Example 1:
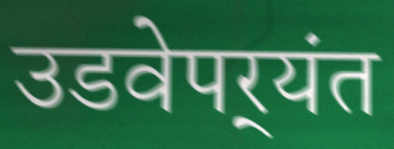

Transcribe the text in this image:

उडवेपर्यंत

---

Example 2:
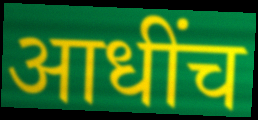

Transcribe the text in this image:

आधींच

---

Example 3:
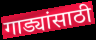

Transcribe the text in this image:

गाड्यांसाठी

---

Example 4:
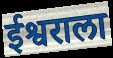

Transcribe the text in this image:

ईश्वराला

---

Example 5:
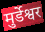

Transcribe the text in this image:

मुर्डेश्वर